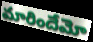
మారిందేమో